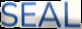
SEAL